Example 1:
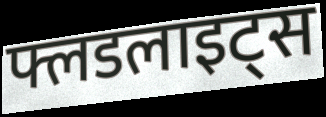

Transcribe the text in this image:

फ्लडलाइट्स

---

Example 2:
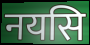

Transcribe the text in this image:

नयसि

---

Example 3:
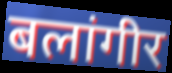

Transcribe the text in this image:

बलांगीर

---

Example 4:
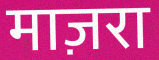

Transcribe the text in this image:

माज़रा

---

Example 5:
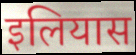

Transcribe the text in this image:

इलियास